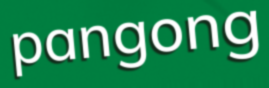
pangong